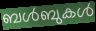
ബൾബുകൾ